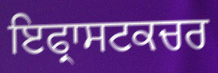
ਇਫ੍ਰਾਸਟਕਚਰ